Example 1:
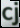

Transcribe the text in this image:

cj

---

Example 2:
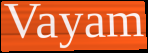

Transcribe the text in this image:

Vayam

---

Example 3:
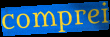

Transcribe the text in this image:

comprei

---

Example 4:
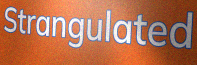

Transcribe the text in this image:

Strangulated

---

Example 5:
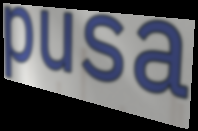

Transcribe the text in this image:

pusa